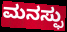
ಮನಸ್ಫು